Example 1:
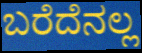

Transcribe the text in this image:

ಬರೆದೆನಲ್ಲ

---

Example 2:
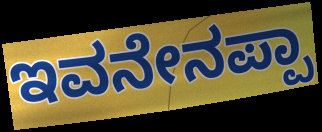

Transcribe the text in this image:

ಇವನೇನಪ್ಪಾ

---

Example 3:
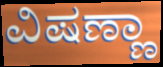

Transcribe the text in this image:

ವಿಷಣ್ಣಾ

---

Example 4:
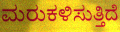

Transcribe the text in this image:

ಮರುಕಳಿಸುತ್ತಿದೆ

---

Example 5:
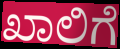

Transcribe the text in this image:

ಖಾಲಿಗೆ